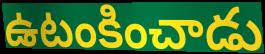
ఉటంకించాడు